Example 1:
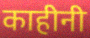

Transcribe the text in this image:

काहीनी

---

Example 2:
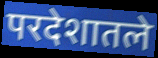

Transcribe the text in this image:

परदेशातले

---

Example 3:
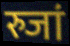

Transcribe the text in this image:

रुजां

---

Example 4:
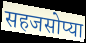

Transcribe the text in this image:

सहजसोप्या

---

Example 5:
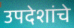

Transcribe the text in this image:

उपदेशांचे